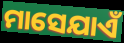
ମାସେଯାଏଁ